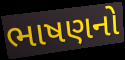
ભાષણનો